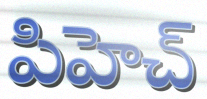
పిహెచ్